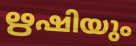
ഋഷിയും